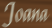
Joana